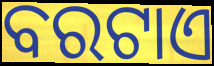
ବରଟାଏ